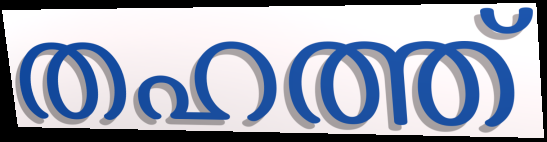
തഹത്ത്